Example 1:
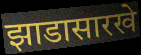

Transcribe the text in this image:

झाडासारखे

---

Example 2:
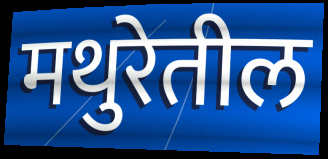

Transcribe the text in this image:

मथुरेतील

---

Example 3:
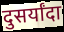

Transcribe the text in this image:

दुसर्यांदा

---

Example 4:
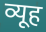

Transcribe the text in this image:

व्यूह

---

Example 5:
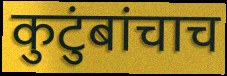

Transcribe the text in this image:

कुटुंबांचाच